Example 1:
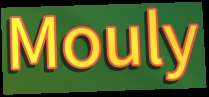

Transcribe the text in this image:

Mouly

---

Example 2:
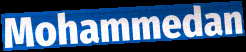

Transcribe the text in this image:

Mohammedan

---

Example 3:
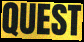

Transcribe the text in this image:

QUEST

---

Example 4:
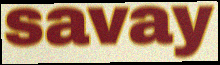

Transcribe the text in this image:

savay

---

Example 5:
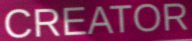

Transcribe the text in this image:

CREATOR